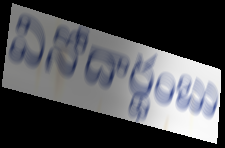
వినోదార్థంబు